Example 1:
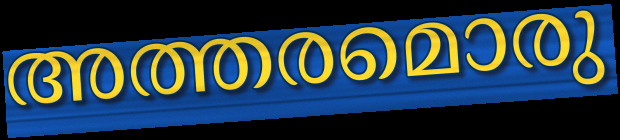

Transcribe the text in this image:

അത്തരമൊരു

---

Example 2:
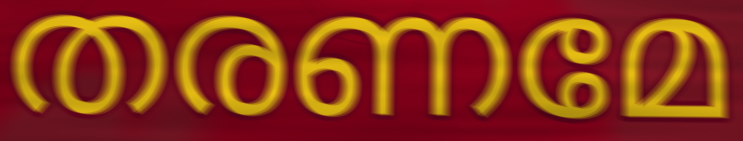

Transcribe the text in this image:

തരണമേ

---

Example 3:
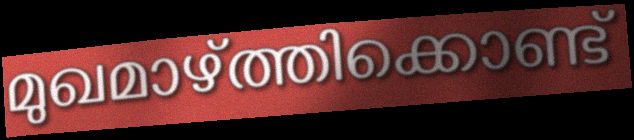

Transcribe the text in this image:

മുഖമാഴ്ത്തിക്കൊണ്ട്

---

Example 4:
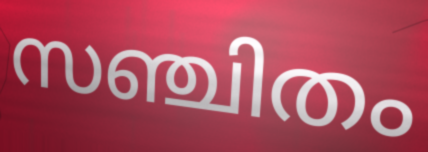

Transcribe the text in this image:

സഞ്ചിതം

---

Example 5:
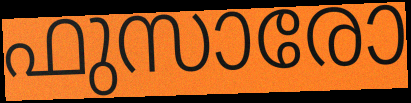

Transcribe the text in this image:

ഫുസാരോ